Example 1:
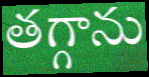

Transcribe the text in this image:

తగ్గాను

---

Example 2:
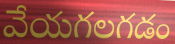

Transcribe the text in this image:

వేయగలగడం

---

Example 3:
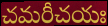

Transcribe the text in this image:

చమరీచయః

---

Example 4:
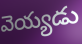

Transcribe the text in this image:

వెయ్యడు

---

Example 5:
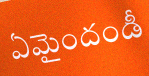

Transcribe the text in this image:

ఏమైందండీ